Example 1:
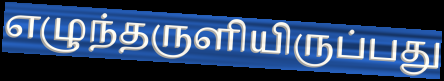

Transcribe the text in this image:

எழுந்தருளியிருப்பது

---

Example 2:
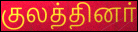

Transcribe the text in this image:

குலத்தினர்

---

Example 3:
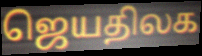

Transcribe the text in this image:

ஜெயதிலக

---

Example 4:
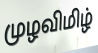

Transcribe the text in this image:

முழவிமிழ்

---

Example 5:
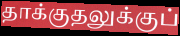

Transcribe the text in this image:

தாக்குதலுக்குப்